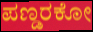
ಪಣ್ಡರಕೋ